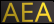
AEA